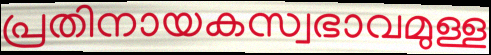
പ്രതിനായകസ്വഭാവമുള്ള